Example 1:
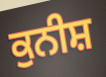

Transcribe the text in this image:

ਕੁਨੀਸ਼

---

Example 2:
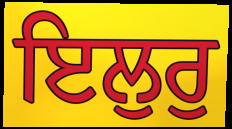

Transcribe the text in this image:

ਇਲੁਰੁ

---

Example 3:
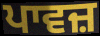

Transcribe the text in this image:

ਪਾਵਜ਼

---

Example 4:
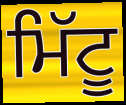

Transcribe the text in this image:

ਮਿੱਟੂ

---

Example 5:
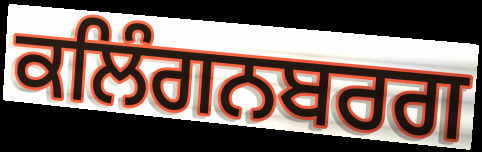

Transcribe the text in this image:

ਕਲਿੰਗਨਬਰਗ